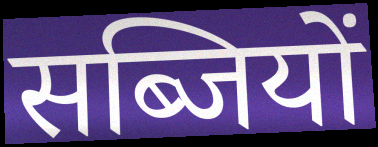
सब्जियों